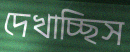
দেখাচ্ছিস